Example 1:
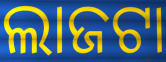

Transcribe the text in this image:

ଲାଜଟା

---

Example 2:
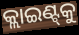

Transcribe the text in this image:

କ୍ଲାଇଣ୍ଟ୍‌କୁ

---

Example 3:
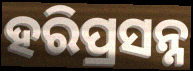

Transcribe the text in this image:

ହରିପ୍ରସନ୍ନ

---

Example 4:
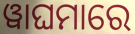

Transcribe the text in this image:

ୱାଘମାରେ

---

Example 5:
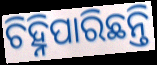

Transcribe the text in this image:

ଚିହ୍ନିପାରିଛନ୍ତି